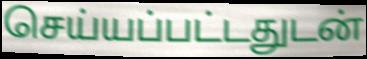
செய்யப்பட்டதுடன்